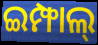
ଇମ୍ଫାଲ୍